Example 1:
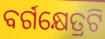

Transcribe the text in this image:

ବର୍ଗକ୍ଷେତ୍ରଟି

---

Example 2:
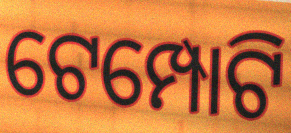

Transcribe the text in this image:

ଟେମ୍ପୋଟି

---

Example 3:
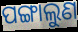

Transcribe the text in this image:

ପଙ୍ଗାଲୁଣ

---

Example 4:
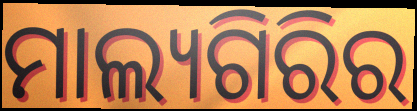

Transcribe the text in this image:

ମାଲ୍ୟଗିରିର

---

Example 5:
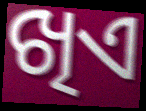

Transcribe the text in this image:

ଖିଏ